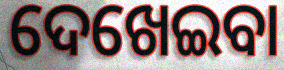
ଦେଖେଇବା